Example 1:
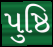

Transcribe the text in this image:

પુષ્ઠિ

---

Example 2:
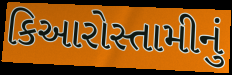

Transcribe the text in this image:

કિઆરોસ્તામીનું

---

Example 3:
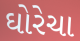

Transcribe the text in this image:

ઘોરેચા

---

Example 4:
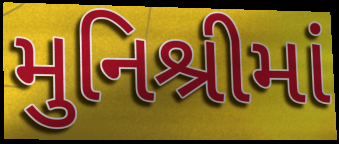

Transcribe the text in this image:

મુનિશ્રીમાં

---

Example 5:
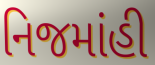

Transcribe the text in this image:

નિજમાંહી